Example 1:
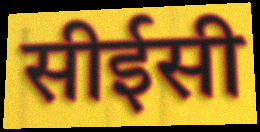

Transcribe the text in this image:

सीईसी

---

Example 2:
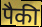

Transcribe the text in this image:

पैकी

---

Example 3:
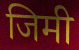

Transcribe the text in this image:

जिमी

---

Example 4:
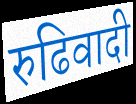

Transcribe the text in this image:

रुढिवादी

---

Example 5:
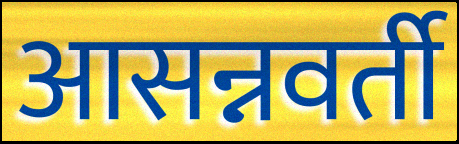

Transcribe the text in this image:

आसन्नवर्ती